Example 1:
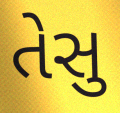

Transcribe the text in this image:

તેસુ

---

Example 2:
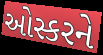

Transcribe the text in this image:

ઓસ્કરને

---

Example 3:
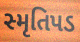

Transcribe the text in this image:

સ્મૃતિપડ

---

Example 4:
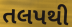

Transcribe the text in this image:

તલપથી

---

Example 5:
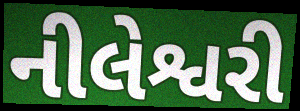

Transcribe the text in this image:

નીલેશ્વરી